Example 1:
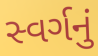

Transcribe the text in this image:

સ્વર્ગનું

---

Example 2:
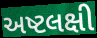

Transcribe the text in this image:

અષ્ટલક્ષી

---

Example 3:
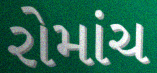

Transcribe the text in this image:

રોમાંચ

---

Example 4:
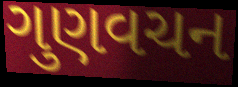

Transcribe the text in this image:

ગુણવચન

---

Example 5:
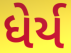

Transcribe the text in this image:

ધેર્ય